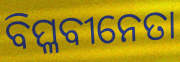
ବିପ୍ଳବୀନେତା